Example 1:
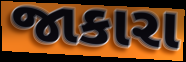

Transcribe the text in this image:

જાકારા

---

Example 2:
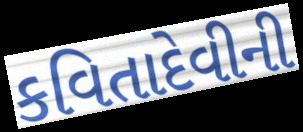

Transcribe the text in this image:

કવિતાદેવીની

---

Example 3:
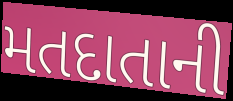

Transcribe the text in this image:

મતદાતાની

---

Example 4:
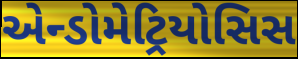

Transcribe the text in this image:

એન્ડોમેટ્રિયોસિસ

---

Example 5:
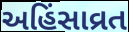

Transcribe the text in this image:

અહિંસાવ્રત